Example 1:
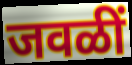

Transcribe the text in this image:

जवळीं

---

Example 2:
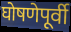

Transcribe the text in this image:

घोषणेपूर्वी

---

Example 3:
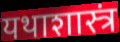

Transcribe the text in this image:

यथाशास्त्रं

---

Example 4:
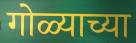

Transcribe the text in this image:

गोळ्याच्या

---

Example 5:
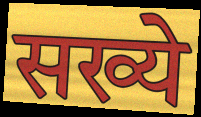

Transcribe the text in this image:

सख्ये